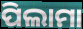
ପିଲାମା